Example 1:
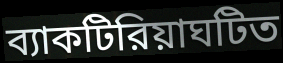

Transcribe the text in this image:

ব্যাকটিরিয়াঘটিত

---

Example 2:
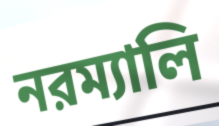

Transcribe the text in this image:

নরম্যালি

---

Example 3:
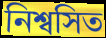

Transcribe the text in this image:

নিশ্বসিত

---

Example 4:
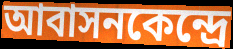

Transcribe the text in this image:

আবাসনকেন্দ্রে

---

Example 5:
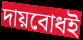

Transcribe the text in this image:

দায়বোধই